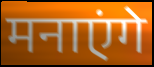
मनाएंगे